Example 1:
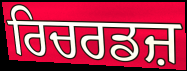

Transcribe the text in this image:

ਰਿਚਰਡਜ਼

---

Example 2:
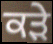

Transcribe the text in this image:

ਕੜੇ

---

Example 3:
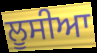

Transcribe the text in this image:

ਲੂਸੀਆ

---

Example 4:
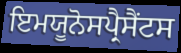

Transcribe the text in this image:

ਇਮਯੂਨੋਸਪ੍ਰੈਸੈਂਟਸ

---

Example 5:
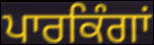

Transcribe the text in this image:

ਪਾਰਕਿੰਗਾਂ